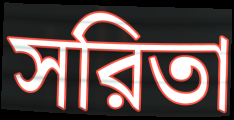
সরিতা